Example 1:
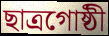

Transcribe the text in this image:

ছাত্রগোষ্ঠী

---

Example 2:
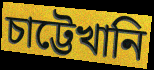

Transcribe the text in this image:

চাট্টেখানি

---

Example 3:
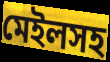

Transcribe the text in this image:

মেইলসহ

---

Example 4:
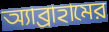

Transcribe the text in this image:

অ্যাব্রাহামের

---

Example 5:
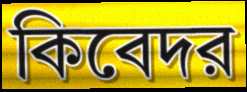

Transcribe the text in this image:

কিবেদর